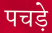
पचड़े